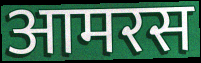
आमरस